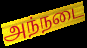
அந்நடை